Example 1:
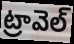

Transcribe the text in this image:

ట్రావెల్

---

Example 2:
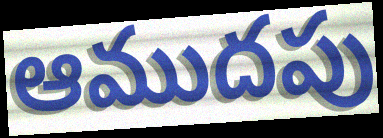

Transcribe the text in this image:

ఆముదపు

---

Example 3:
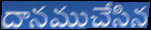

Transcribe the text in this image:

దానముచేసిన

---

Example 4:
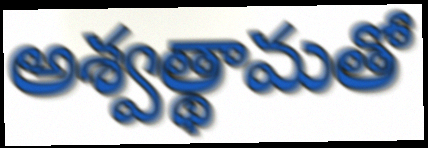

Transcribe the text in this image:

అశ్వత్థామతో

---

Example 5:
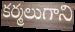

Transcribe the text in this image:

కర్మలుగాని